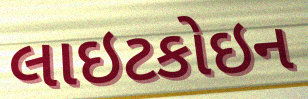
લાઇટકોઇન